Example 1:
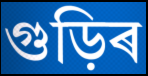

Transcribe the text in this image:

গুড়িৰ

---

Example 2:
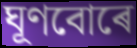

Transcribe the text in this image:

ঘূণবোৰে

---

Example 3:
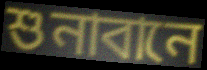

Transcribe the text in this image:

শুনাবানে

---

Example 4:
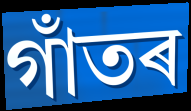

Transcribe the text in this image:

গাঁতৰ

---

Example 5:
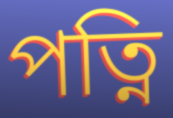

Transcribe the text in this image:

পত্নি